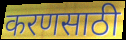
करणसाठी